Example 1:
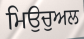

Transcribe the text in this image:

ਮਿਉਚੁਅਲ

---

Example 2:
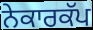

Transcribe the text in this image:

ਨੇਕਾਰਕੱਪ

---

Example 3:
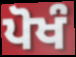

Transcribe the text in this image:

ਪੋਖੰ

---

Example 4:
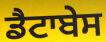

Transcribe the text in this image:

ਡੈਟਾਬੇਸ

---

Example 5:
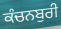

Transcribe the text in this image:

ਕੰਚਨਬੁਰੀ